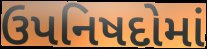
ઉપનિષદોમાં